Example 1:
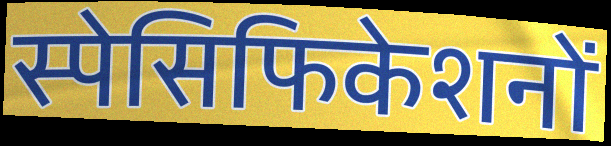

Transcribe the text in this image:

स्पेसिफिकेशनों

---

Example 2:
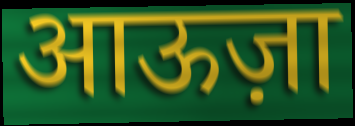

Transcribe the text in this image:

आऊज़ा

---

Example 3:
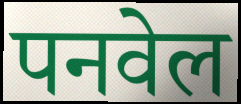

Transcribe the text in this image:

पनवेल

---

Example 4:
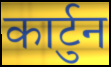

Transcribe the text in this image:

कार्टुन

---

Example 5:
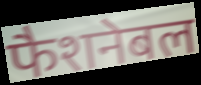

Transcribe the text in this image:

फैशनेबल